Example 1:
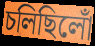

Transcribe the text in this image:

চলিছিলোঁ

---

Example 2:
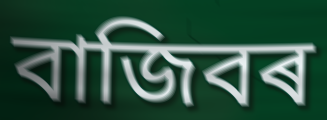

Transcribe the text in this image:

বাজিবৰ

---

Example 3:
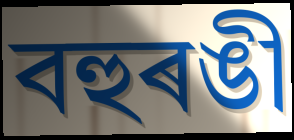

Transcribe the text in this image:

বহুৰঙী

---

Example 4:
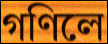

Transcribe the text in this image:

গণিলে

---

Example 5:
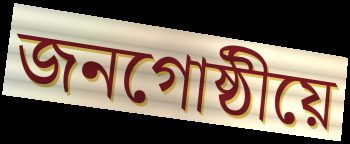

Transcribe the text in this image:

জনগোষ্ঠীয়ে